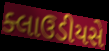
ક્લાઉડીયસે